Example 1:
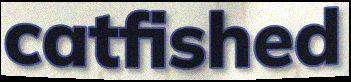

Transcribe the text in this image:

catfished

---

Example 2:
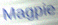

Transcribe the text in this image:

Magpie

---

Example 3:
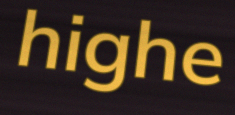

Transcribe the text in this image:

highe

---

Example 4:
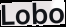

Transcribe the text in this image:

Lobo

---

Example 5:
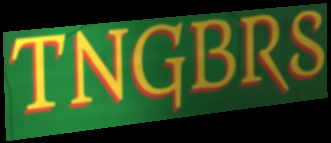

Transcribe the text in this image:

TNGBRS